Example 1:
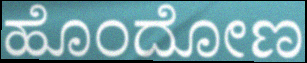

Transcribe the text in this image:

ಹೊಂದೋಣ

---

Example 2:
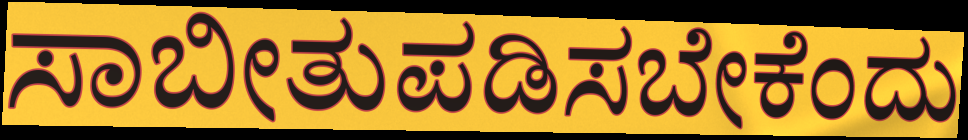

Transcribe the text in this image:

ಸಾಬೀತುಪಡಿಸಬೇಕೆಂದು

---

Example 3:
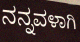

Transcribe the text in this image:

ನನ್ನವಳಾಗಿ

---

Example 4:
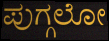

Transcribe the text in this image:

ಪುಗ್ಗಲೋ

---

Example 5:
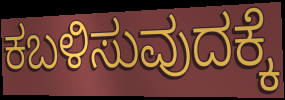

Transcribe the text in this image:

ಕಬಳಿಸುವುದಕ್ಕೆ